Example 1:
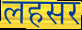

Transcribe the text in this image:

लहसर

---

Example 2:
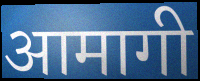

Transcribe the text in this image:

आमागी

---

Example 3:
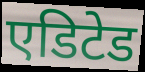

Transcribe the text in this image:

एडिटेड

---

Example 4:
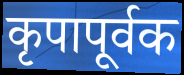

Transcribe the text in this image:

कृपापूर्वक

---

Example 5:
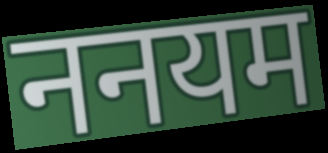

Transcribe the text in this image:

ननयम